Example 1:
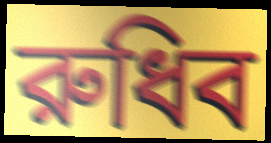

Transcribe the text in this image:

রুধিব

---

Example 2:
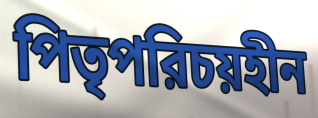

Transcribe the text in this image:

পিতৃপরিচয়হীন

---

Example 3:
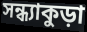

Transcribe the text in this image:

সন্ধ্যাকুড়া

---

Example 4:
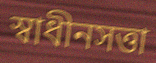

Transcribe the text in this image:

স্বাধীনসত্তা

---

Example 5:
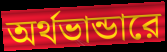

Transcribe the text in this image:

অর্থভান্ডারে